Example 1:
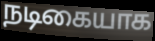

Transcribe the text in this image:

நடிகையாக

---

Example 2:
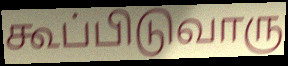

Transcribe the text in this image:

கூப்பிடுவாரு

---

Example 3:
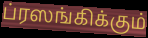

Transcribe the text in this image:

ப்ரஸங்கிக்கும்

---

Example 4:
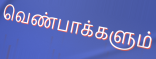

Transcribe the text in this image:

வெண்பாக்களும்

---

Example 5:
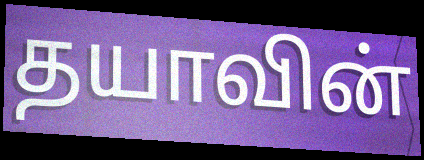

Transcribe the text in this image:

தயாவின்